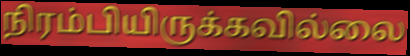
நிரம்பியிருக்கவில்லை